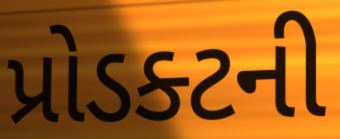
પ્રોડક્ટની